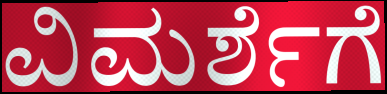
ವಿಮರ್ಶೆಗೆ